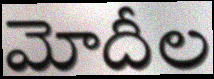
మోదీల